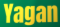
Yagan